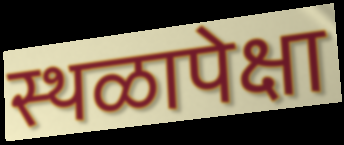
स्थळापेक्षा